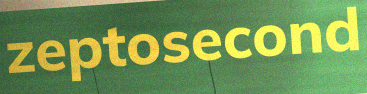
zeptosecond